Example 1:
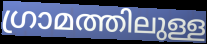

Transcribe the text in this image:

ഗ്രാമത്തിലുള്ള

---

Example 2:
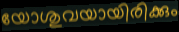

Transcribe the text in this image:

യോശുവയായിരിക്കും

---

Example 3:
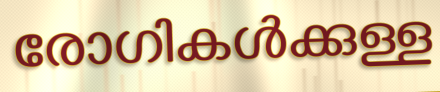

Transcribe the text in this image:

രോഗികൾക്കുള്ള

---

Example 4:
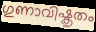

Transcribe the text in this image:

ഗുണാവിഷ്കൃതം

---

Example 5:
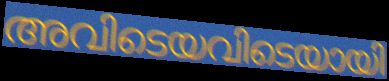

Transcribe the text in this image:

അവിടെയവിടെയായി